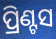
ପ୍ରିଣ୍ଟସ